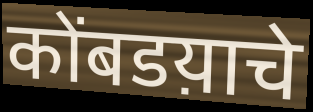
कोंबडय़ाचे